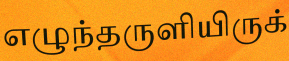
எழுந்தருளியிருக்